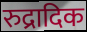
रुद्रादिक